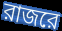
রাজরে